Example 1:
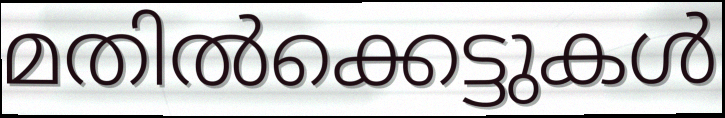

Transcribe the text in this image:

മതിൽക്കെട്ടുകൾ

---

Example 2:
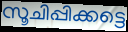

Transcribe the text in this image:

സൂചിപ്പിക്കട്ടെ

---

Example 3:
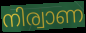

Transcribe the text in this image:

നിര്വാണ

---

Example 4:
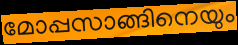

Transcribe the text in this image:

മോപ്പസാങ്ങിനെയും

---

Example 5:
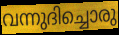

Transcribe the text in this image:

വന്നുദിച്ചൊരു